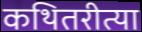
कथितरीत्या